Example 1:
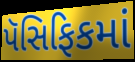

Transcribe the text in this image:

પૅસિફિકમાં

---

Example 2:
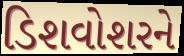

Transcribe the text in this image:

ડિશવોશરને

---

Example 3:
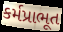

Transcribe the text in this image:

કર્મપ્રાભૂત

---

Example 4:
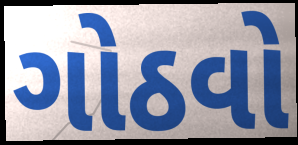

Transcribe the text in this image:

ગોઠવો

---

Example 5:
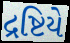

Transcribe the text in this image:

દ્રષ્ટિયે